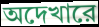
অদেখারে